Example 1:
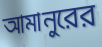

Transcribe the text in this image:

আমানুরের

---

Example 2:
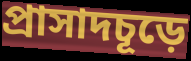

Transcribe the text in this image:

প্রাসাদচূড়ে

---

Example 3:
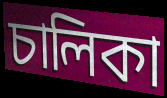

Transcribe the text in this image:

চালিকা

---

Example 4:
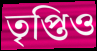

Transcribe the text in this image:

তৃপ্তিও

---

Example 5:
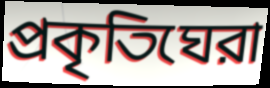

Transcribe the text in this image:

প্রকৃতিঘেরা